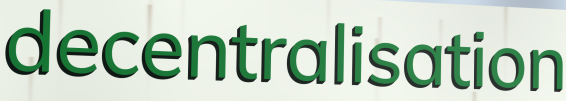
decentralisation